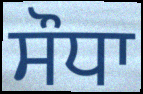
ਸੌਧਾ